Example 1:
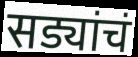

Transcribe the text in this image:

सड्यांचं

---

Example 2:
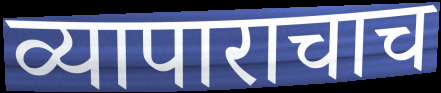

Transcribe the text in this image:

व्यापाराचाच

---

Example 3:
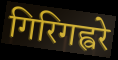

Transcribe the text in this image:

गिरिगह्वरे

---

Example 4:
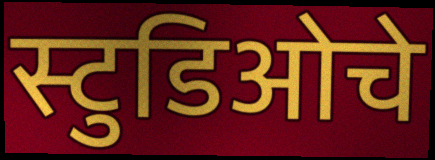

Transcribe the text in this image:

स्टुडिओचे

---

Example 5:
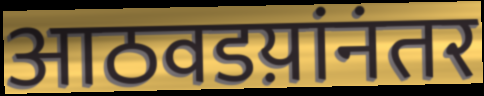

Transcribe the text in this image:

आठवडय़ांनंतर